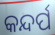
କନ୍ଦର୍ପ